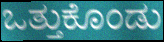
ಒತ್ತುಕೊಂಡು